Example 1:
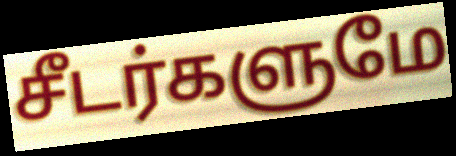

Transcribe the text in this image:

சீடர்களுமே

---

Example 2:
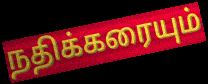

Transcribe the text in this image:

நதிக்கரையும்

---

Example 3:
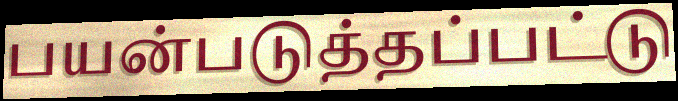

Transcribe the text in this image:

பயன்படுத்தப்பட்டு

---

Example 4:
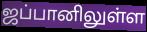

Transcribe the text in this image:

ஜப்பானிலுள்ள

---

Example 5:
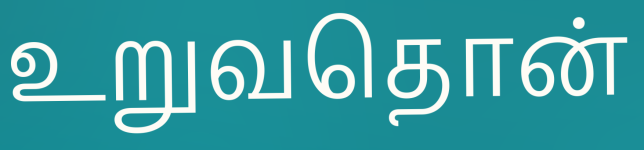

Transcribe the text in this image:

உறுவதொன்